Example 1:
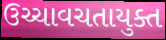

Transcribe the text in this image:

ઉચ્ચાવચતાયુક્ત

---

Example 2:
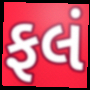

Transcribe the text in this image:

ફલં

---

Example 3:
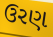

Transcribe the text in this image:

ઉરણ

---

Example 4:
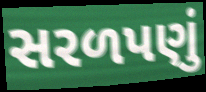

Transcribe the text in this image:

સરળપણું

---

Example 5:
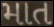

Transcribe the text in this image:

માત